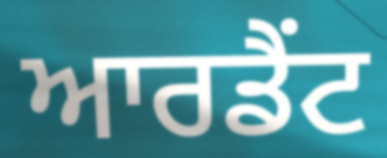
ਆਰਡੈਂਟ